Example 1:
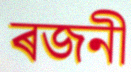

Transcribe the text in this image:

ৰজনী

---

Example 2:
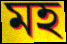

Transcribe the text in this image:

মহ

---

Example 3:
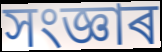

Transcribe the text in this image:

সংজ্ঞাৰ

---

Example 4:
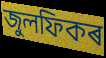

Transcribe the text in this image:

জুলফিকৰ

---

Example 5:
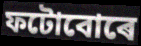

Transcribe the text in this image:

ফটোবোৰে